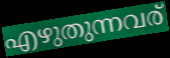
എഴുതുന്നവര്